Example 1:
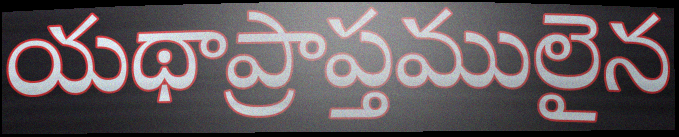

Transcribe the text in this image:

యథాప్రాప్తములైన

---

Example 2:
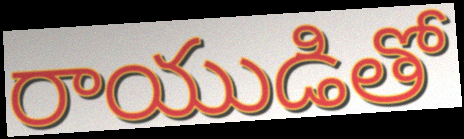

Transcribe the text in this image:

రాయుడితో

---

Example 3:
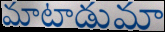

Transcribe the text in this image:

మాటాడుమా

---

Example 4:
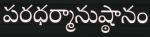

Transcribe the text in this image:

పరధర్మానుష్ఠానం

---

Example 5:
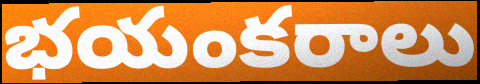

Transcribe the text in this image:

భయంకరాలు